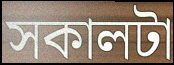
সকালটা